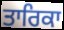
ਤਾਰਿਕਾ